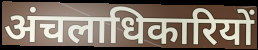
अंचलाधिकारियों